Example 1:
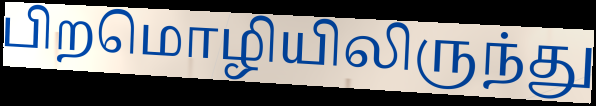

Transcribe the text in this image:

பிறமொழியிலிருந்து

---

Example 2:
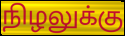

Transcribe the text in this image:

நிழலுக்கு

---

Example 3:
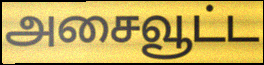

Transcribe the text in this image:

அசைவூட்ட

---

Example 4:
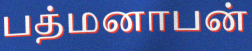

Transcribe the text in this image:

பத்மனாபன்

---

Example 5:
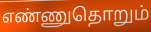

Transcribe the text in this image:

எண்ணுதொறும்